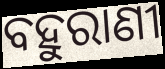
ବହୁରାଣୀ